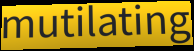
mutilating